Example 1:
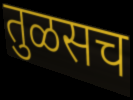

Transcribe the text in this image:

तुळसच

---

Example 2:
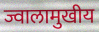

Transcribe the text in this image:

ज्वालामुखीय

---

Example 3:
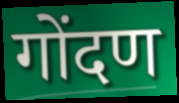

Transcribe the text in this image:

गोंदण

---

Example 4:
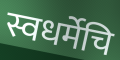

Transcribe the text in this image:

स्वधर्मेचि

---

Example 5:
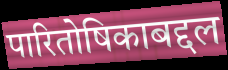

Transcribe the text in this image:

पारितोषिकाबद्दल